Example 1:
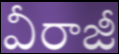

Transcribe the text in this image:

వీరాజీ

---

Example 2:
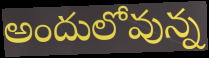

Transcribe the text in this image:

అందులోవున్న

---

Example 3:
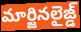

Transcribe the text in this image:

మార్జినలైజ్డ్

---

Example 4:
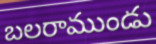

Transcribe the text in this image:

బలరాముండు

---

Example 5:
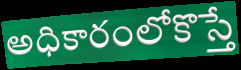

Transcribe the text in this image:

అధికారంలోకొస్తే